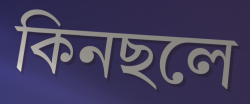
কিনছলে